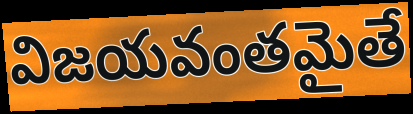
విజయవంతమైతే